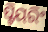
ଷ୍ଟିୟରିଂ